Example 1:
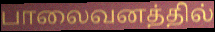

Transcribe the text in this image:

பாலைவனத்தில்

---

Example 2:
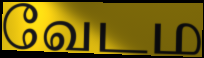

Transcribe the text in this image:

வேடம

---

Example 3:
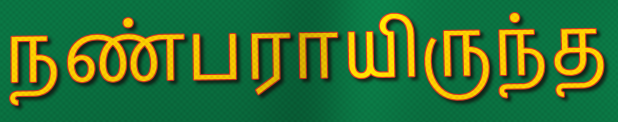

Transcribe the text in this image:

நண்பராயிருந்த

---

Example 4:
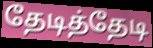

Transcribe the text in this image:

தேடித்தேடி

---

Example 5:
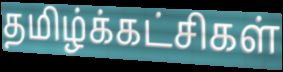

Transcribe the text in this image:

தமிழ்க்கட்சிகள்